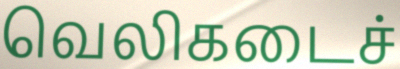
வெலிகடைச்